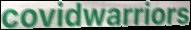
covidwarriors